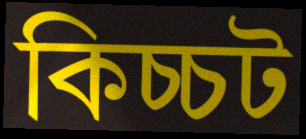
কিচ্চট